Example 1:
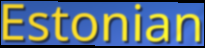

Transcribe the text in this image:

Estonian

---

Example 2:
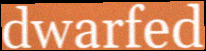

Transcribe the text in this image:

dwarfed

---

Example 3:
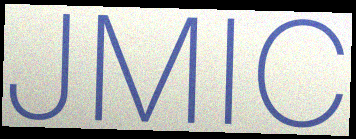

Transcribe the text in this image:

JMIC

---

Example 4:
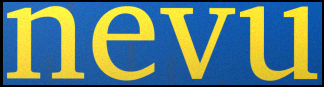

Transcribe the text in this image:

nevu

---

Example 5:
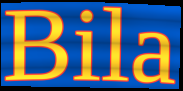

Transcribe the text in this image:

Bila